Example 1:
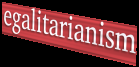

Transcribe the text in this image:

egalitarianism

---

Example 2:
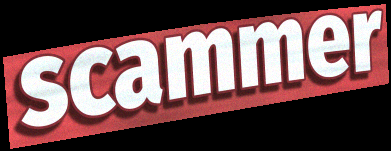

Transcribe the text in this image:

scammer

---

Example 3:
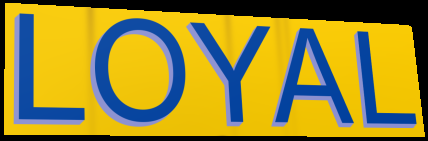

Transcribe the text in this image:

LOYAL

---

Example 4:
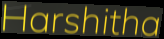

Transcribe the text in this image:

Harshitha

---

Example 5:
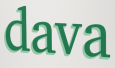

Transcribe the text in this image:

dava